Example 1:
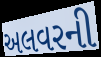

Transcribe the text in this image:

અલવરની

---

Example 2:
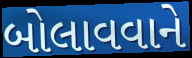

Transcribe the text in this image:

બોલાવવાને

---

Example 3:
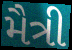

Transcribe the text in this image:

મૈત્રી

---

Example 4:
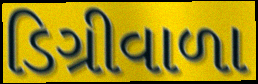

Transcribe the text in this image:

ડિગ્રીવાળા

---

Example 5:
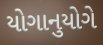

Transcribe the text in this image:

યોગાનુયોગે